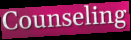
Counseling